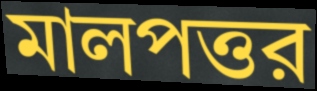
মালপত্তর